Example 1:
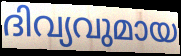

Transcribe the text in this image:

ദിവ്യവുമായ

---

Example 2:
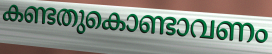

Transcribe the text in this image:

കണ്ടതുകൊണ്ടാവണം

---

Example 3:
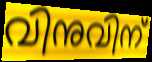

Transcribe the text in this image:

വിനുവിന്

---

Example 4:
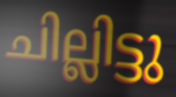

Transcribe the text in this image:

ചില്ലിട്ടു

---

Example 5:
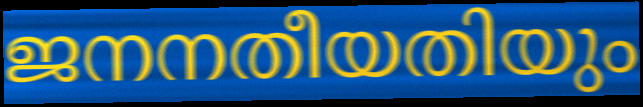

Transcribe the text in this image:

ജനനതീയതിയും